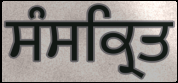
ਸੰਸਕ੍ਰਿਤ